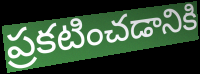
ప్రకటించడానికి